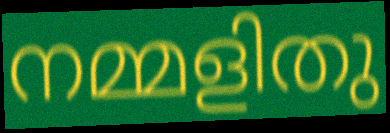
നമ്മളിതു